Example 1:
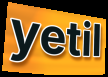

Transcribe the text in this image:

yetil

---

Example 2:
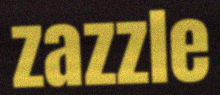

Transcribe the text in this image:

zazzle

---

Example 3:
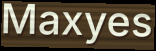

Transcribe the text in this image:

Maxyes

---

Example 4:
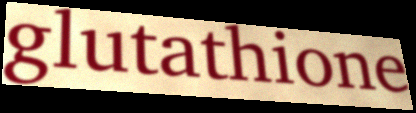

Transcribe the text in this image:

glutathione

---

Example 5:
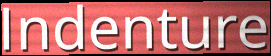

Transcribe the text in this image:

Indenture